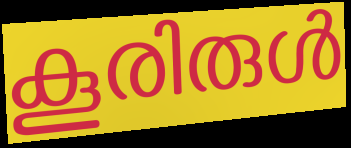
കൂരിരുൾ